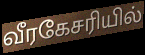
வீரகேசரியில்